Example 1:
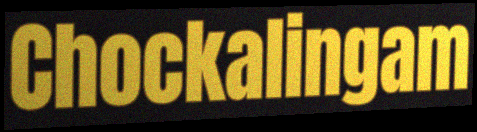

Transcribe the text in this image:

Chockalingam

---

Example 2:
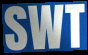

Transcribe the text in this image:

SWT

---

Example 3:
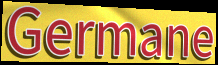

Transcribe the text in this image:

Germane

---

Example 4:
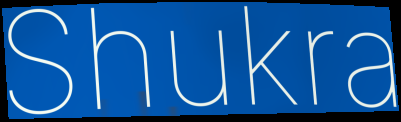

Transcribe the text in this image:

Shukra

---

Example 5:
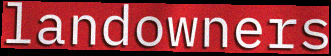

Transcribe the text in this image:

landowners